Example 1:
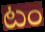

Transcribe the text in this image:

టం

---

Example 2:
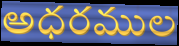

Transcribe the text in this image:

అధరముల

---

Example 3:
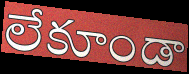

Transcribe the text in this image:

లేకూండా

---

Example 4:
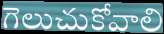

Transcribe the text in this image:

గెలుచుకోవాలి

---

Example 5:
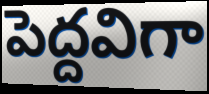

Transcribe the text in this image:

పెద్దవిగా